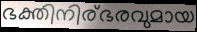
ഭക്തിനിര്ഭരവുമായ